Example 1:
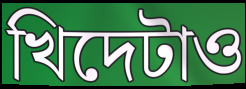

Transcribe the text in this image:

খিদেটাও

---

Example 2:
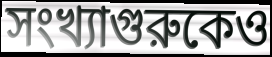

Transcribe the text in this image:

সংখ্যাগুরুকেও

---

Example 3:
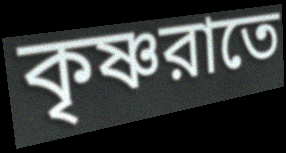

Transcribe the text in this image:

কৃষ্ণরাতে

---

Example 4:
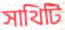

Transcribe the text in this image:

সাথিটি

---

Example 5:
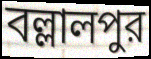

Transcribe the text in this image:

বল্লালপুর